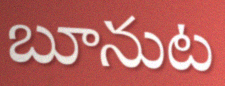
బూనుట